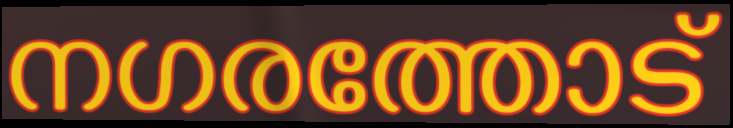
നഗരത്തോട്